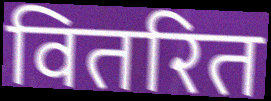
वितरित